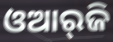
ଓଆର୍‌ଜି